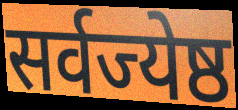
सर्वज्येष्ठ